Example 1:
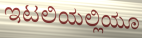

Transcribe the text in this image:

ಇಟಲಿಯಲ್ಲಿಯೂ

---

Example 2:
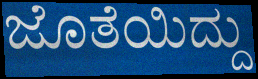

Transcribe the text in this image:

ಜೊತೆಯಿದ್ದು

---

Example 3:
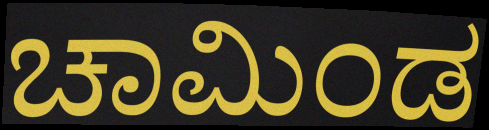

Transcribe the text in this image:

ಚಾಮಿಂಡ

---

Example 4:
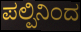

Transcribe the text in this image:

ಪಲ್ಪಿನಿಂದ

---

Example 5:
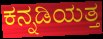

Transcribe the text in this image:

ಕನ್ನಡಿಯತ್ತ